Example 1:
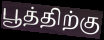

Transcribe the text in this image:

பூத்திற்கு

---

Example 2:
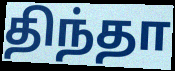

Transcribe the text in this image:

திந்தா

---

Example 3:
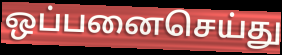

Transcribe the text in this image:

ஒப்பனைசெய்து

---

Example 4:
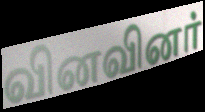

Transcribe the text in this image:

வினவினர்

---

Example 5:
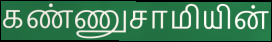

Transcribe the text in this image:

கண்ணுசாமியின்